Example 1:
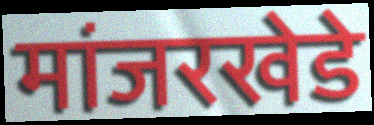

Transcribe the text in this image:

मांजरखेडे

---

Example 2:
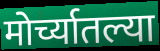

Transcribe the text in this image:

मोर्च्यातल्या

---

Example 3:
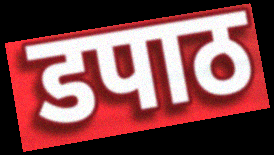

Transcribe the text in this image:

डपाठ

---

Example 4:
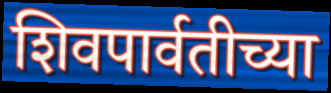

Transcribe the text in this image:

शिवपार्वतीच्या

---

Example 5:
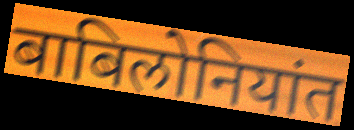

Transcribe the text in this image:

बाबिलोनियांत